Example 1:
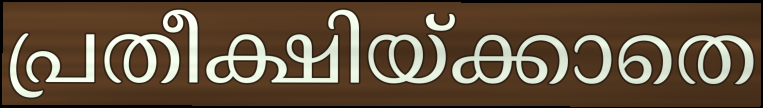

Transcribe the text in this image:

പ്രതീക്ഷിയ്ക്കാതെ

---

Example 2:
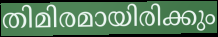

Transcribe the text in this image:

തിമിരമായിരിക്കും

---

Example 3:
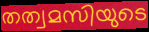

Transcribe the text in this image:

തത്വമസിയുടെ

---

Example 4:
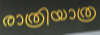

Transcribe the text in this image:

രാത്രിയാത്ര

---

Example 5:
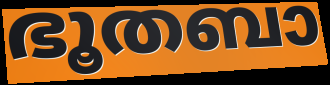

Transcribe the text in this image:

ഭൂതബാ